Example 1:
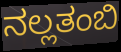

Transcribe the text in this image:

ನಲ್ಲತಂಬಿ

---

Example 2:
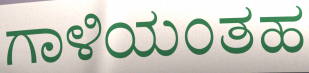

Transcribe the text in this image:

ಗಾಳಿಯಂತಹ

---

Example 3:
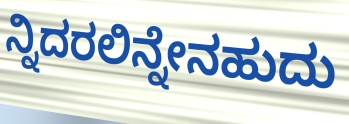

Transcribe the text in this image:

ನ್ನಿದರಲಿನ್ನೇನಹುದು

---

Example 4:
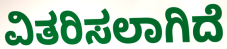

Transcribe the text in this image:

ವಿತರಿಸಲಾಗಿದೆ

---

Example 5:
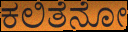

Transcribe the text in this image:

ಕಲಿತೆನೋ